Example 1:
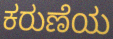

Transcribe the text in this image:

ಕರುಣೆಯ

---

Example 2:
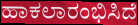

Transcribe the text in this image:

ಹಾಕಲಾರಂಭಿಸಿದೆ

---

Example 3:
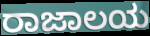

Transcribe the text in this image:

ರಾಜಾಲಯ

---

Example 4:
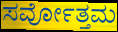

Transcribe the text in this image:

ಸರ್ವೋತ್ತಮ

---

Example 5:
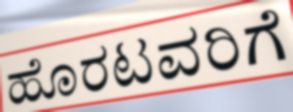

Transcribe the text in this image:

ಹೊರಟವರಿಗೆ